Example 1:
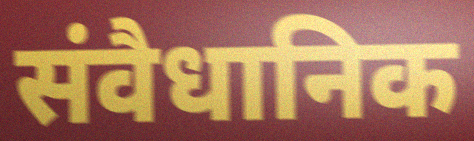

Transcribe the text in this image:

संवैधानिक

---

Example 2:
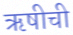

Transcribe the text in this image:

ऋषीची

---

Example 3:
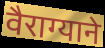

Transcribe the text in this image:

वैराग्याने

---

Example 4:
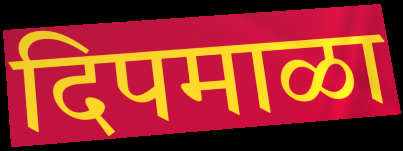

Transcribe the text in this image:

दिपमाळा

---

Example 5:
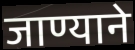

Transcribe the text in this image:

जाण्याने